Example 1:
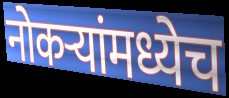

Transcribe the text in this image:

नोकऱ्यांमध्येच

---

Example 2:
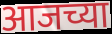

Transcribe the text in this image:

आजच्या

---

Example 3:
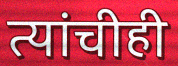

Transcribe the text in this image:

त्यांचीही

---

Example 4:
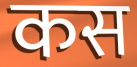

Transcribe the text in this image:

कस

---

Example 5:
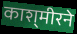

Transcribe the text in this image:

काश्मीरने